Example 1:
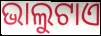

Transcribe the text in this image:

ଭାଲୁଟାଏ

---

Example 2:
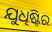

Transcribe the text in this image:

ଯୁଧିଷ୍ଟିର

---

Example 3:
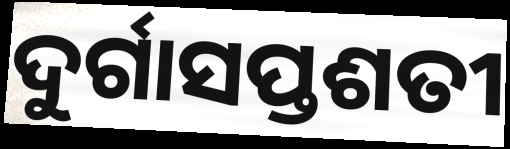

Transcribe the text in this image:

ଦୁର୍ଗାସପ୍ତଶତୀ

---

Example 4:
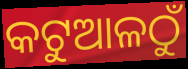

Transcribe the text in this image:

କଟୁଆଳଠୁଁ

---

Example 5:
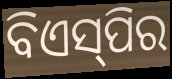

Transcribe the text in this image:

ବିଏସ୍‌ପିର